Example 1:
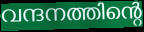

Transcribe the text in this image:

വന്ദനത്തിന്റെ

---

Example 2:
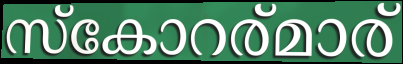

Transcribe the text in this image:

സ്കോറര്മാര്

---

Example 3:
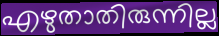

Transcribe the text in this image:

എഴുതാതിരുന്നില്ല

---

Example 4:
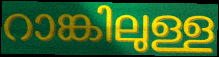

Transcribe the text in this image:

റാങ്കിലുള്ള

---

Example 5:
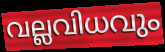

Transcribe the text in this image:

വല്ലവിധവും